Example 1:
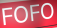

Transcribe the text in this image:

FOFO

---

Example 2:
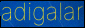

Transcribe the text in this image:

adigalar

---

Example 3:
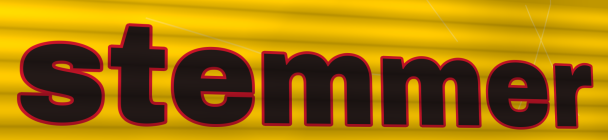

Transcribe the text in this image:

stemmer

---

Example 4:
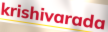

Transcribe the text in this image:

krishivarada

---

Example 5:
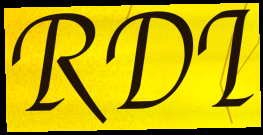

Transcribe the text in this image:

RDI